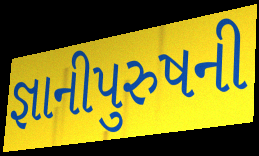
જ્ઞાનીપુરુષની